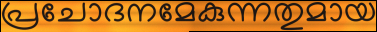
പ്രചോദനമേകുന്നതുമായ